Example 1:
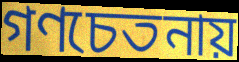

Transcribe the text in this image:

গণচেতনায়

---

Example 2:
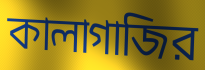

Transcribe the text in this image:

কালাগাজির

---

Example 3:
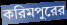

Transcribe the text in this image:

করিমপুরের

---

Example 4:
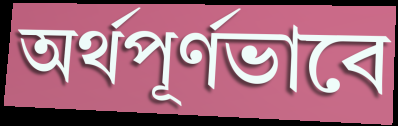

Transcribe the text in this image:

অর্থপূর্ণভাবে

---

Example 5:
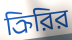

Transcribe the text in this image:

ক্রিরির